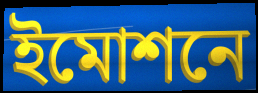
ইমোশনে